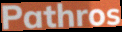
Pathros